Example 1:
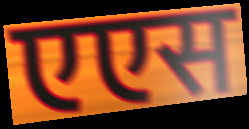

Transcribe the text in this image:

एएस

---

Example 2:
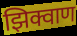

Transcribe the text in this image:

झिक्वाण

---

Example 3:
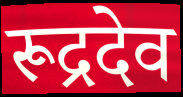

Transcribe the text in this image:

रूद्रदेव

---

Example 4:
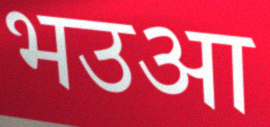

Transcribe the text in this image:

भउआ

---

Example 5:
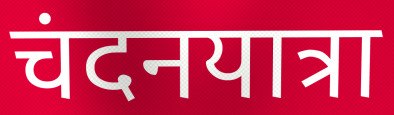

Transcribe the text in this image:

चंदनयात्रा